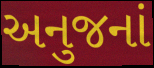
અનુજનાં